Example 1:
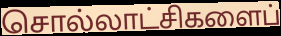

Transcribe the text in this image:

சொல்லாட்சிகளைப்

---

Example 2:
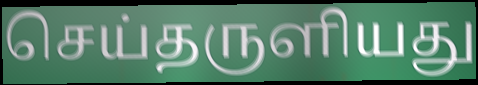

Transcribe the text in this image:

செய்தருளியது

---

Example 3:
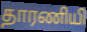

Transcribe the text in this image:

தாரணியி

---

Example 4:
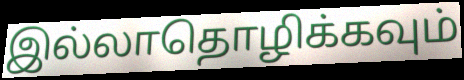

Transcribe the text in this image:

இல்லாதொழிக்கவும்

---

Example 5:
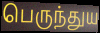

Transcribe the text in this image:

பெருந்துய